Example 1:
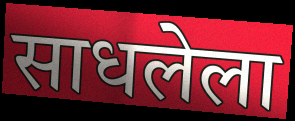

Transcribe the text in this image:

साधलेला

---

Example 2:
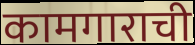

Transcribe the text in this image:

कामगाराची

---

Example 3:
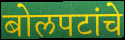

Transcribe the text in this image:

बोलपटांचे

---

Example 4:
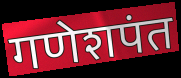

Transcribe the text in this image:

गणेशपंत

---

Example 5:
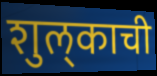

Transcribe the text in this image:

शुल्काची